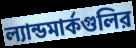
ল্যান্ডমার্কগুলির